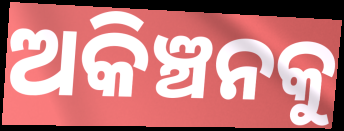
ଅକିଞ୍ଚନକୁ